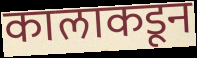
कालाकडून